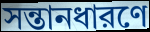
সন্তানধারণে